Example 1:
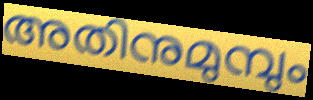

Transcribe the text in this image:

അതിനുമുമ്പും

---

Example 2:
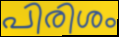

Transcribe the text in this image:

പിരിശം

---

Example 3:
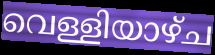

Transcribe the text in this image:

വെള്ളിയാഴ്ച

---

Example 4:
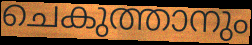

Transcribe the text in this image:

ചെകുത്താനും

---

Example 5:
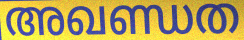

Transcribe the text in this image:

അഖണ്ഡത